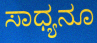
ಸಾಧ್ಯನೂ